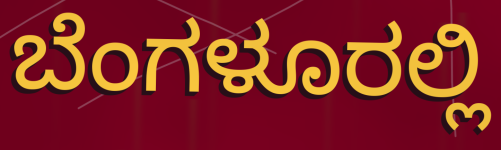
ಬೆಂಗಳೂರಲ್ಲಿ